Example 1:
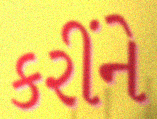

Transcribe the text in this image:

કરીંને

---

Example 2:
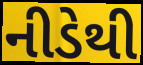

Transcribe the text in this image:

નીડેથી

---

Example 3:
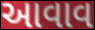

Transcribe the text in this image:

આવાવ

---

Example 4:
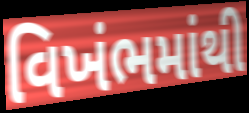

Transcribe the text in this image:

વિખંભમાંથી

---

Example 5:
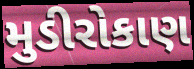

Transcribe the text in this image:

મુડીરોકાણ